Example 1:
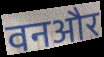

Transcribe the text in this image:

वनऔर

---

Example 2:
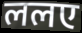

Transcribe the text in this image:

ललए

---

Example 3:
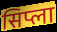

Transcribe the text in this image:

सिप्ला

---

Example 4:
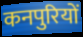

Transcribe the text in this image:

कनपुरियों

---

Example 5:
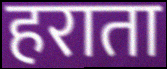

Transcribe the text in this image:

हराता